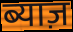
ब्याज़